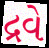
દ્રવે